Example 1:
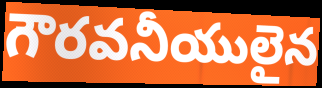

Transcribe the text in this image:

గౌరవనీయులైన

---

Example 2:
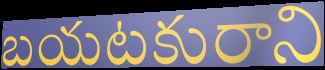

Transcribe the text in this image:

బయటకురాని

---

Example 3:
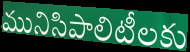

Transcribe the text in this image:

మునిసిపాలిటీలకు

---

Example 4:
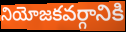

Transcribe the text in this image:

నియోజకవర్గానికి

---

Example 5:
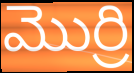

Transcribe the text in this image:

మొర్రి